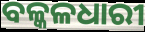
ବଳ୍କଳଧାରୀ